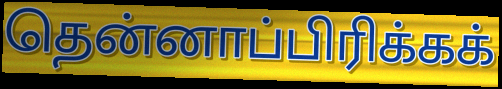
தென்னாப்பிரிக்கக்